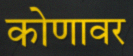
कोणावर